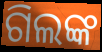
ଗିଲଙ୍କ